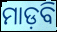
ମାଡ଼ବି